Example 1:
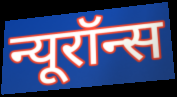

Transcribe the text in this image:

न्यूरॉन्स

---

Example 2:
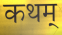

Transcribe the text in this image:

कथम्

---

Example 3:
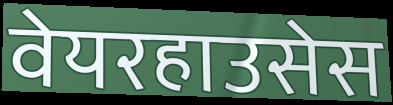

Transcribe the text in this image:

वेयरहाउसेस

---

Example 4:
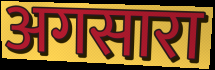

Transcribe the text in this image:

अगसारा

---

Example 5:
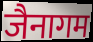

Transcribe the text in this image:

जैनागम